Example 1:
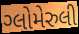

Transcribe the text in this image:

ગ્લોમેરુલી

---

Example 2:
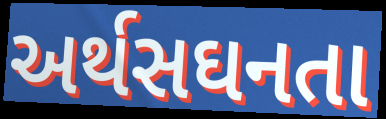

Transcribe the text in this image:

અર્થસઘનતા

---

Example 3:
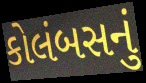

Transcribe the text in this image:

કોલંબસનું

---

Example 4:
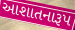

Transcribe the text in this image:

આશાતનારૂપ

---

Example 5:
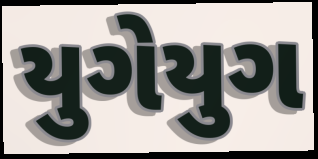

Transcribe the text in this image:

યુગેયુગ